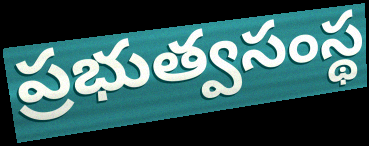
ప్రభుత్వసంస్థ